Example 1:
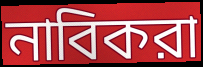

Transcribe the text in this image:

নাবিকরা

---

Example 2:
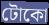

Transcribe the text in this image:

টোকো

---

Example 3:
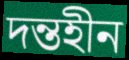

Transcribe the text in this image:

দন্তহীন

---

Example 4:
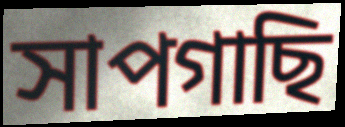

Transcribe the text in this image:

সাপগাছি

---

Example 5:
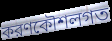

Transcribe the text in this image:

করণকৌশলগত